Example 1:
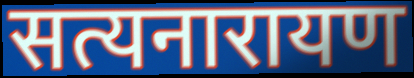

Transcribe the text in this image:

सत्यनारायण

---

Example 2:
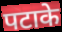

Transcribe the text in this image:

पटाके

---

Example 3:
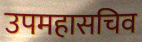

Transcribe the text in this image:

उपमहासचिव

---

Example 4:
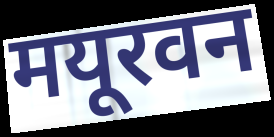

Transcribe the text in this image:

मयूरवन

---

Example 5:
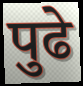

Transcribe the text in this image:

पुढे